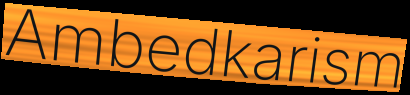
Ambedkarism